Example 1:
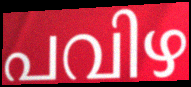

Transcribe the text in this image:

പവിഴ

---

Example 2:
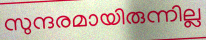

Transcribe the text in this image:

സുന്ദരമായിരുന്നില്ല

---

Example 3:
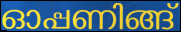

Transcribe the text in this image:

ഓപ്പണിങ്ങ്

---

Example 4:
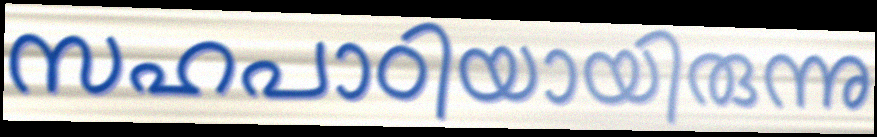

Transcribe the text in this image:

സഹപാഠിയായിരുന്നു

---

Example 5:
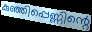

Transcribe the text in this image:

കുഞ്ഞിപ്പെണ്ണിന്റെ